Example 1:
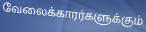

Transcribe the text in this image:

வேலைக்காரர்களுக்கும்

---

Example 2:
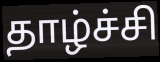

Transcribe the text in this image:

தாழ்ச்சி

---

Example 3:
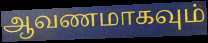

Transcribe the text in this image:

ஆவணமாகவும்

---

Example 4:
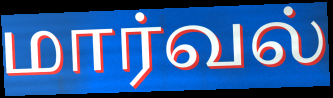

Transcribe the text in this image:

மார்வல்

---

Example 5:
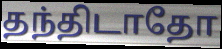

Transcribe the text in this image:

தந்திடாதோ